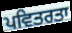
ਪਵਿਤਰਤਾ